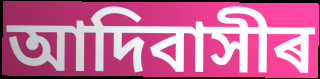
আদিবাসীৰ